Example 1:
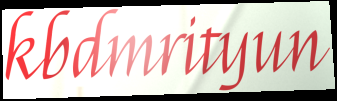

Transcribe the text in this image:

kbdmrityun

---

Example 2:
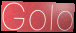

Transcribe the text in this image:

Golo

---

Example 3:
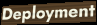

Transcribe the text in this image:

Deployment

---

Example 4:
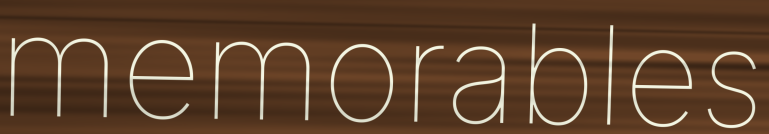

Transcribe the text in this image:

memorables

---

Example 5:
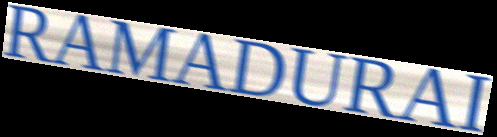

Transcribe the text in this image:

RAMADURAI